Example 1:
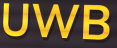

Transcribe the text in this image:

UWB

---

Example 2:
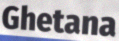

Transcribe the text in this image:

Ghetana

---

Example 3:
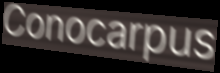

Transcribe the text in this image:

Conocarpus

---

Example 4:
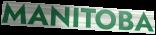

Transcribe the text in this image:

MANITOBA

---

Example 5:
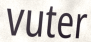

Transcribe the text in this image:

vuter